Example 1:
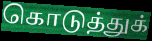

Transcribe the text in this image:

கொடுத்துக்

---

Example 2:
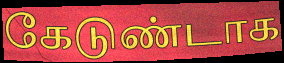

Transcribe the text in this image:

கேடுண்டாக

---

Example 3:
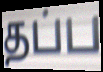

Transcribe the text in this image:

தப்ப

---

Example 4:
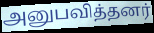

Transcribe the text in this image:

அனுபவித்தனர்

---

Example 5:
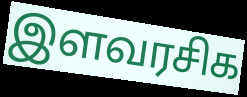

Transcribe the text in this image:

இளவரசிக